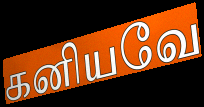
கனியவே